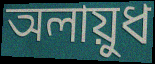
অলায়ুধ